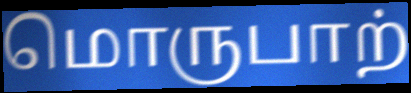
மொருபாற்